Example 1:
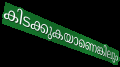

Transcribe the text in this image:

കിടക്കുകയാണെങ്കിലും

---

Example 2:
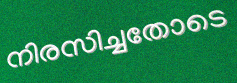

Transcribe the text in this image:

നിരസിച്ചതോടെ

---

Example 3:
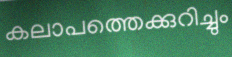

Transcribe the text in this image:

കലാപത്തെക്കുറിച്ചും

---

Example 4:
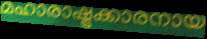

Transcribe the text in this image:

മഹാരാഷ്ട്രക്കാരനായ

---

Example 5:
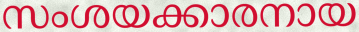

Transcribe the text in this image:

സംശയക്കാരനായ